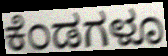
ಕೆಂಡಗಳೂ